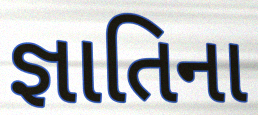
જ્ઞાતિના